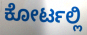
ಕೋರ್ಟಲ್ಲಿ